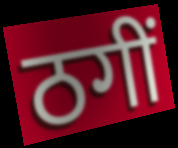
ठगीं